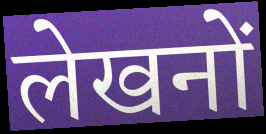
लेखनों